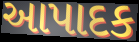
આપાદક